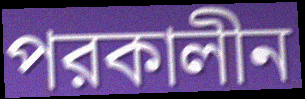
পরকালীন